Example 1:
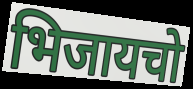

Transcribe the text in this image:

भिजायचो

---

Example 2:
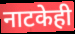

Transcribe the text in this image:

नाटकेही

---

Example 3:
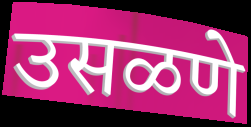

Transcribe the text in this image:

उसळणे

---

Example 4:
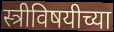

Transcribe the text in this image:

स्त्रीविषयीच्या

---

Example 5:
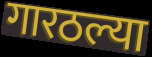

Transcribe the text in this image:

गारठल्या